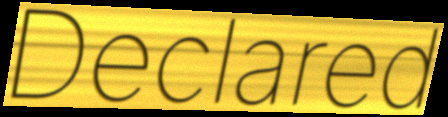
Declared